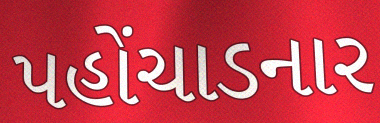
પહોંચાડનાર